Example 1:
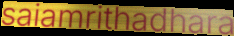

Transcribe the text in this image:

saiamrithadhara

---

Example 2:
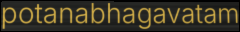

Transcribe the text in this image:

potanabhagavatam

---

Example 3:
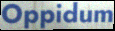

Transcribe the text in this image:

Oppidum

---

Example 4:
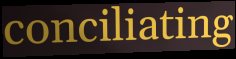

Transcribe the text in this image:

conciliating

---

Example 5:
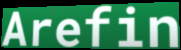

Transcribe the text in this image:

Arefin